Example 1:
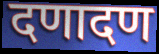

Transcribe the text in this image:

दणादण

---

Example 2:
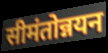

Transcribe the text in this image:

सीमंतोन्नयन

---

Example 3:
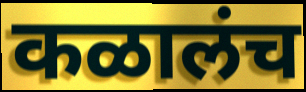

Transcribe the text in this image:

कळालंच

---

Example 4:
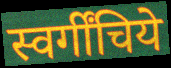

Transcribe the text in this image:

स्वर्गींचिये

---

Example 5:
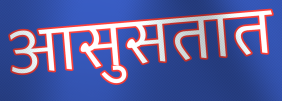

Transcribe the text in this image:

आसुसतात